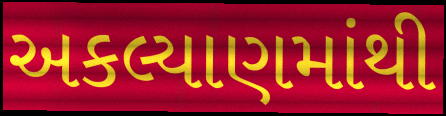
અકલ્યાણમાંથી